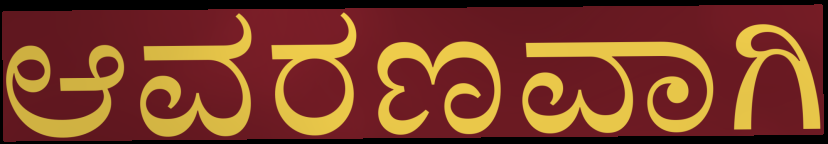
ಆವರಣವಾಗಿ